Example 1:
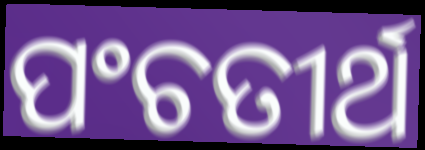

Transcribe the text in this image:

ପଂଚତୀର୍ଥ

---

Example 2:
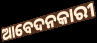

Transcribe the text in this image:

ଆବେଦନକାରୀ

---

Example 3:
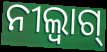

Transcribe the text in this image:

ନୀଲ୍ବାଗ୍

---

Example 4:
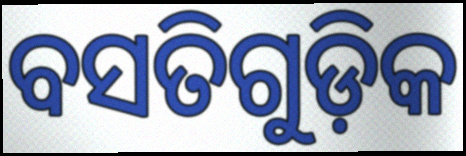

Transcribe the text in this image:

ବସତିଗୁଡ଼ିକ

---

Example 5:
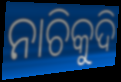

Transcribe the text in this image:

ନାଚିକୁଦି